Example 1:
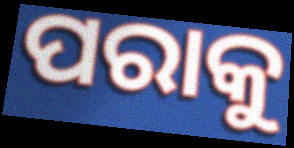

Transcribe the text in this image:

ପରାକୁ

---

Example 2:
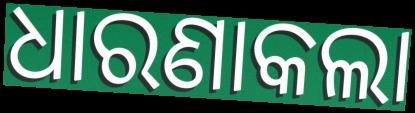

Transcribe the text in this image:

ଧାରଣାକଲା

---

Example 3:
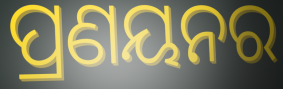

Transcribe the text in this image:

ପ୍ରଣୟନର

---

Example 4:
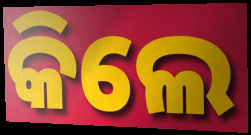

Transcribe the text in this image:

କିଲେ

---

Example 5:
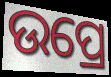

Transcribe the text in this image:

ଉପ୍ରେ